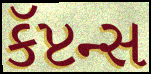
કૅપ્ટન્સ